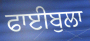
ਫਾਈਬੁਲਾ